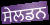
ਸੇਲਡਨ